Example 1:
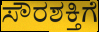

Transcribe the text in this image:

ಸೌರಶಕ್ತಿಗೆ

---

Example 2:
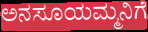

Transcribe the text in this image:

ಅನಸೂಯಮ್ಮನಿಗೆ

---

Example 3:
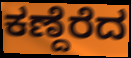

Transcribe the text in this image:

ಕಣ್ದೆರೆದ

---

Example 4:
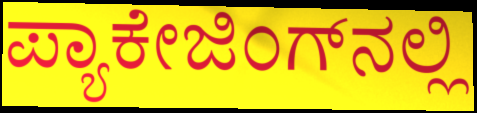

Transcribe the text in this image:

ಪ್ಯಾಕೇಜಿಂಗ್‌ನಲ್ಲಿ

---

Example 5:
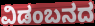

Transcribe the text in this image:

ವಿಡಂಬನದ